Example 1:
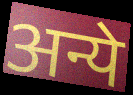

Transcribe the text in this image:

अन्ये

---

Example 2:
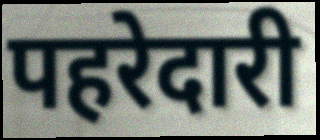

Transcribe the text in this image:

पहरेदारी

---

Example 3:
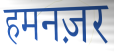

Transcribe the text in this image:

हमनज़र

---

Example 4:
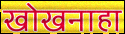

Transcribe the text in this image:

खोखनाहा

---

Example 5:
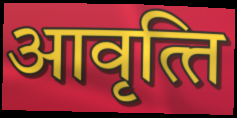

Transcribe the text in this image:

आवृत्‍ति